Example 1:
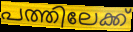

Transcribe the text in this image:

പത്തിലേക്ക്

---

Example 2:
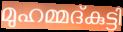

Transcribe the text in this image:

മുഹമ്മദ്കുട്ടി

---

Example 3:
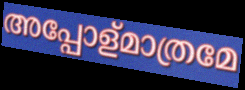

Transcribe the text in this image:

അപ്പോള്മാത്രമേ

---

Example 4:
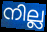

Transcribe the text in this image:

നില്ല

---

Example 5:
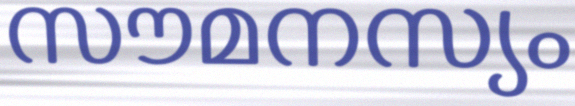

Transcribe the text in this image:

സൗമനസ്യം